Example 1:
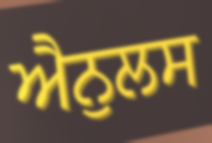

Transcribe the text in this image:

ਐਨੁਲਸ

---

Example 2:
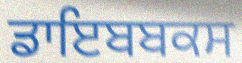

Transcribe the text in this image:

ਡਾਇਬਬਕਸ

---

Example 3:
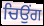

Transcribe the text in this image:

ਚਿਉਂਗ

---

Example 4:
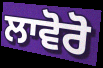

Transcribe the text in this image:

ਲਾਵੋਰੋ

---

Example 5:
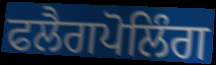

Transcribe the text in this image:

ਫਲੈਗਪੋਲਿੰਗ